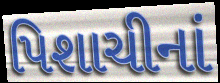
પિશાચીનાં